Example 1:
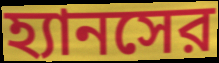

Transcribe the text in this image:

হ্যানসের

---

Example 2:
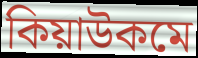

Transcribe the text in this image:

কিয়াউকমে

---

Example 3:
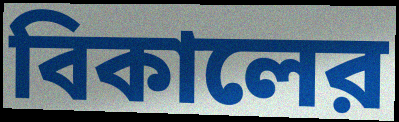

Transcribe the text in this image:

বিকালের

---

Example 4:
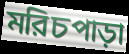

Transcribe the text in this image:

মরিচপাড়া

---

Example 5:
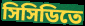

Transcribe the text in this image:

সিসিডিতে